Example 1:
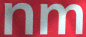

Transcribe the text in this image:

nm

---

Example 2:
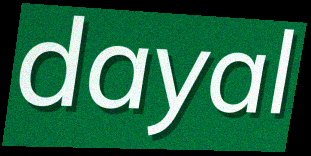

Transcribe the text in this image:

dayal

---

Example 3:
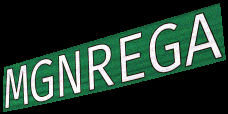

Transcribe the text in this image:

MGNREGA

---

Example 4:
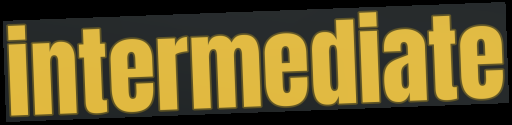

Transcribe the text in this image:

intermediate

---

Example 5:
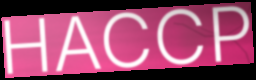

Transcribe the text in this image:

HACCP